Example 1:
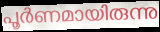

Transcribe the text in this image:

പൂർണമായിരുന്നു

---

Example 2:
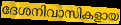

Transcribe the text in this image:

ദേശനിവാസികളായ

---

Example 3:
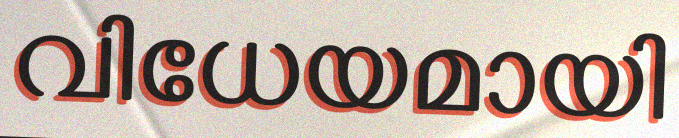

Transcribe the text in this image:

വിധേയമായി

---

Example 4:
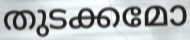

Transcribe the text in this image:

തുടക്കമോ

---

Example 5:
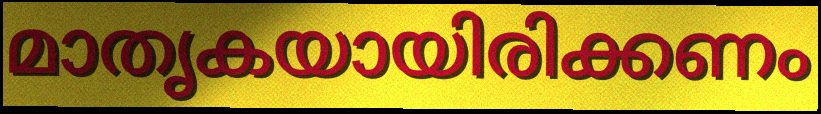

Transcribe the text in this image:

മാതൃകയായിരിക്കണം